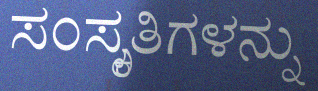
ಸಂಸ್ಕೃತಿಗಳನ್ನು